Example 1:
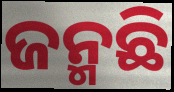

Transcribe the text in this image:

ଜନ୍ମଛି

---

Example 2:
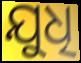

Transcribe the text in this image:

ଯୁଧି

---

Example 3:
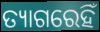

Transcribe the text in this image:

ତ୍ୟାଗରେହିଁ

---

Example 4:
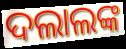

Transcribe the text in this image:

ଦଲାଲଙ୍କ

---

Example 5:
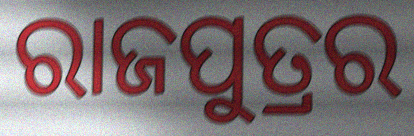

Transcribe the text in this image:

ରାଜପୁତ୍ରର